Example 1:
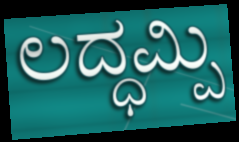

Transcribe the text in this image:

ಲದ್ಧಮ್ಪಿ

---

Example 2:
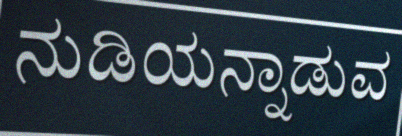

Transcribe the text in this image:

ನುಡಿಯನ್ನಾಡುವ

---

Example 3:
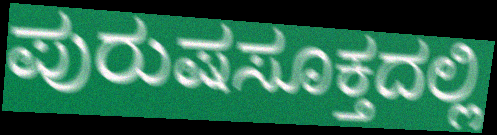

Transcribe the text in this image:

ಪುರುಷಸೂಕ್ತದಲ್ಲಿ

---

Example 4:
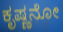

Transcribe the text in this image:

ಕೃಷ್ಣನೋ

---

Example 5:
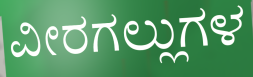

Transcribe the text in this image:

ವೀರಗಲ್ಲುಗಳ